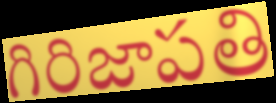
గిరిజాపతి